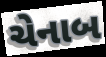
ચેનાબ